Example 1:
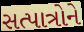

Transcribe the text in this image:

સત્પાત્રોને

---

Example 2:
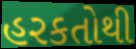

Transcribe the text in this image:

હરકતોથી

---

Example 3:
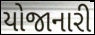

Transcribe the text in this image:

યોજાનારી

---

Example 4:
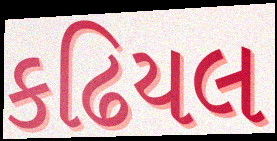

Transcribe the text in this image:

કઢિયલ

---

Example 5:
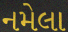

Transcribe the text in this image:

નમેલા